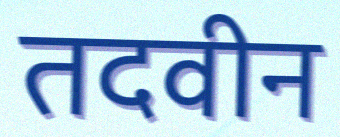
तदवीन